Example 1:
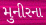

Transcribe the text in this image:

મુનીરના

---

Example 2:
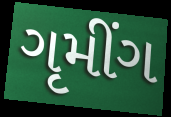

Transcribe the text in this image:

ગૃમીંગ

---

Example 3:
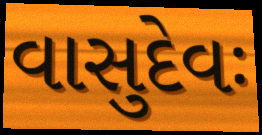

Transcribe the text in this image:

વાસુદેવઃ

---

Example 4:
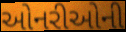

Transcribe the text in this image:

ઓનરીઓની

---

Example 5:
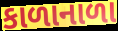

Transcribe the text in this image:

કાળાનાળા